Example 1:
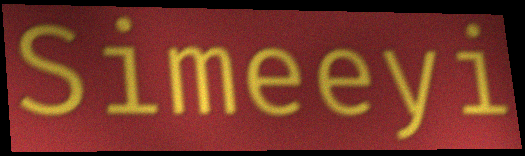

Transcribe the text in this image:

Simeeyi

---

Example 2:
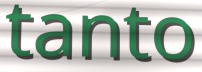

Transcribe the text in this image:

tanto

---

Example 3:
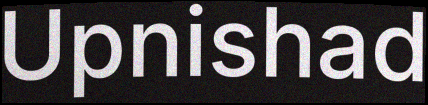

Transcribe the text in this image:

Upnishad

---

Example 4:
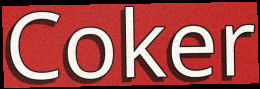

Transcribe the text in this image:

Coker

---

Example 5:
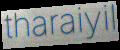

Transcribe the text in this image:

tharaiyil